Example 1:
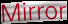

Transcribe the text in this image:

Mirror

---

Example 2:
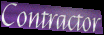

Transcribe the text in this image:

Contractor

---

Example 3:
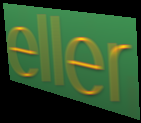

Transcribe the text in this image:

eller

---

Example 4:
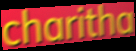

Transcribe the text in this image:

charitha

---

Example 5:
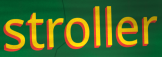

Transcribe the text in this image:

stroller